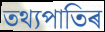
তথ্যপাতিৰ